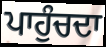
ਪਾਹੁੰਚਦਾ